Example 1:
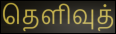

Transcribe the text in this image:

தெளிவுத்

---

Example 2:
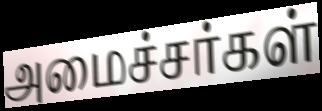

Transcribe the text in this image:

அமைச்சர்கள்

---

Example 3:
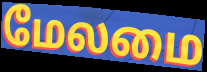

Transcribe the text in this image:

மேலமை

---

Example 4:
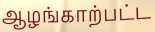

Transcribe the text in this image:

ஆழங்காற்பட்ட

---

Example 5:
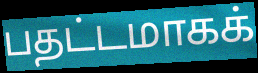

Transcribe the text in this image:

பதட்டமாகக்